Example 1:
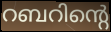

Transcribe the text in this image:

റബറിന്റെ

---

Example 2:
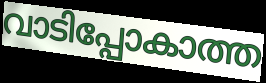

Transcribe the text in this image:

വാടിപ്പോകാത്ത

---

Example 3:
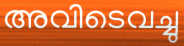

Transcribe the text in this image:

അവിടെവച്ചു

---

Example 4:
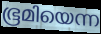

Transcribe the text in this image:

ഭൂമിയെന്ന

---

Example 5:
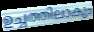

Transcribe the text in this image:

ഉച്ചത്തിലാകും